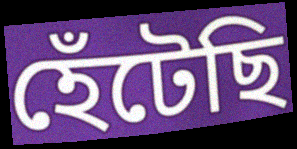
হেঁটেছি